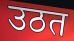
उठत